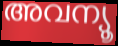
അവന്യൂ